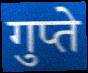
गुप्ते